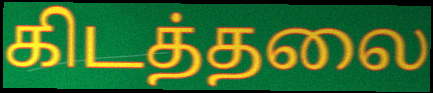
கிடத்தலை